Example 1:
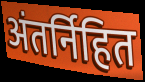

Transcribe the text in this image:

अंतर्निहित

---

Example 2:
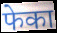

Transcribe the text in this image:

फेका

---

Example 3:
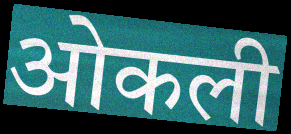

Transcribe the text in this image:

ओकली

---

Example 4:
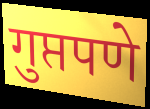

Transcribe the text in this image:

गुप्तपणे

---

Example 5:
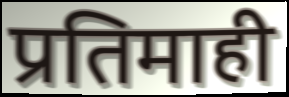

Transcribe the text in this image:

प्रतिमाही